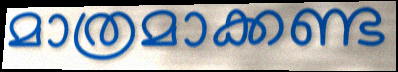
മാത്രമാക്കണ്ട